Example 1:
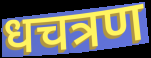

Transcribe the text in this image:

धचत्रण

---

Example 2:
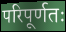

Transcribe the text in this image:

परिपूर्णतः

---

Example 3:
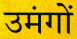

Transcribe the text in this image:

उमंगों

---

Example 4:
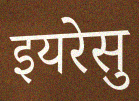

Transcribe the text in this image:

इयरेसु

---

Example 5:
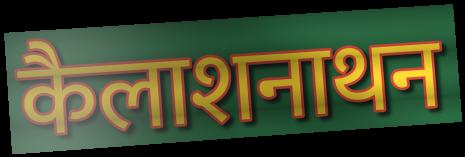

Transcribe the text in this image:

कैलाशनाथन